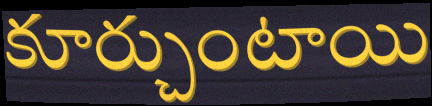
కూర్చుంటాయి